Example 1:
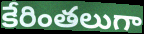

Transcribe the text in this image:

కేరింతలుగా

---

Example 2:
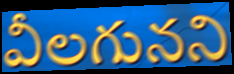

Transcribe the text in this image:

వీలగునని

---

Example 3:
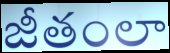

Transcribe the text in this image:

జీతంలా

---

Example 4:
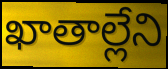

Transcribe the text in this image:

ఖాతాల్లేని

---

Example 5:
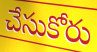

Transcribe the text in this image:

చేసుకోరు